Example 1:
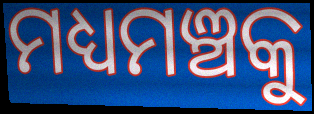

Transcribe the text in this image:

ମଧ୍ୟମଞ୍ଚକୁ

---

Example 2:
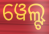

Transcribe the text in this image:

ୱେଲ୍ଟ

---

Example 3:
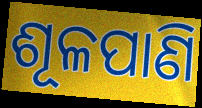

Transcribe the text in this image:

ଶୂଳପାଣି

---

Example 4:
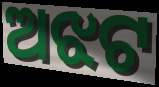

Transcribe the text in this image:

ଅଝଟ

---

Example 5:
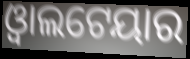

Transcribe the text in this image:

ଓ୍ୱାଲଟେୟାର